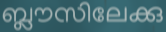
ബ്ലൗസിലേക്കു